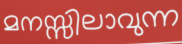
മനസ്സിലാവുന്ന